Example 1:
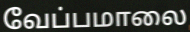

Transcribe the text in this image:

வேப்பமாலை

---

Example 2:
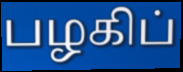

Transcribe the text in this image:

பழகிப்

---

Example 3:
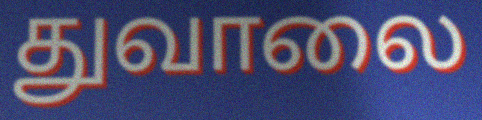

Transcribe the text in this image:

துவாலை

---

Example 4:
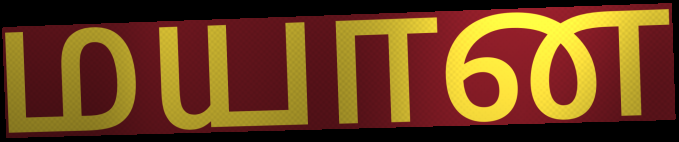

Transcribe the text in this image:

மயான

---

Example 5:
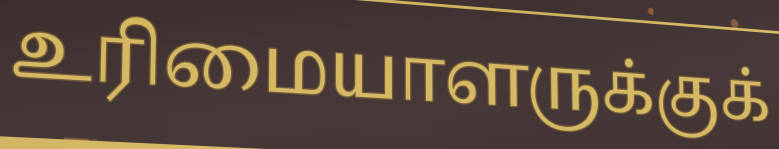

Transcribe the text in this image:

உரிமையாளருக்குக்